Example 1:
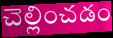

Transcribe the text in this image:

చెల్లించడం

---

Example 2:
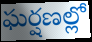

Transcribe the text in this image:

ఘర్షణల్లో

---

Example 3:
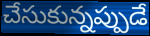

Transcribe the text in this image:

చేసుకున్నప్పుడే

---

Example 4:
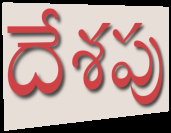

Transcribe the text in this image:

దేశపు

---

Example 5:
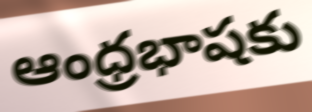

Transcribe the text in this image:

ఆంధ్రభాషకు